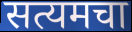
सत्यमचा